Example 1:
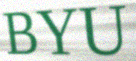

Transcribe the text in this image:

BYU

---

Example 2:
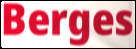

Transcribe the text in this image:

Berges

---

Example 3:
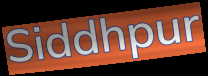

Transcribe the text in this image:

Siddhpur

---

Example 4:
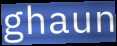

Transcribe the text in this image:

ghaun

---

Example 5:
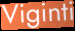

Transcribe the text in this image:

Viginti